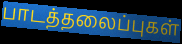
பாடத்தலைப்புகள்